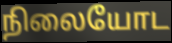
நிலையோட